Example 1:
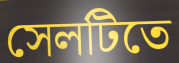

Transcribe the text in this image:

সেলটিতে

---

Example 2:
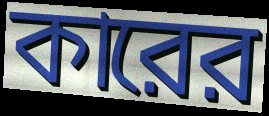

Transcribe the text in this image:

কারের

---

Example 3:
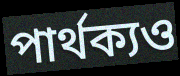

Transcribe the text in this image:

পার্থক্যও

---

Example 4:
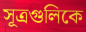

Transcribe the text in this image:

সূত্রগুলিকে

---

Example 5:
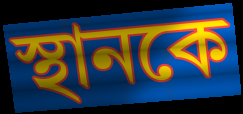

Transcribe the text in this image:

স্থানকে